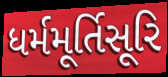
ધર્મમૂર્તિસૂરિ